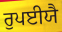
ਰੁਪਈਯੈ